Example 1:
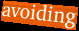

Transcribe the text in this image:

avoiding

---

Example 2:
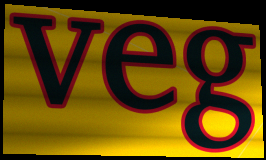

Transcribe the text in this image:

veg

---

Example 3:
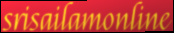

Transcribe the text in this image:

srisailamonline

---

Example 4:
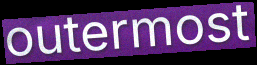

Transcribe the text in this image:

outermost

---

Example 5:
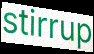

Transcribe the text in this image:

stirrup